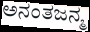
ಅನಂತಜನ್ಮ